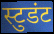
स्टुडंट